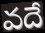
వదే